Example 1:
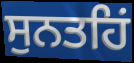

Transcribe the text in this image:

ਸੁਨਤਹਿਂ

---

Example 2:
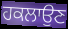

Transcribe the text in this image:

ਹਕਲਾਉਣ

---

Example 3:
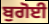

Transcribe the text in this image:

ਬੁਗੋਈ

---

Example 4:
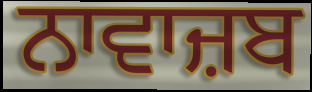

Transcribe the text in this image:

ਨਾਵਾਜ਼ਬ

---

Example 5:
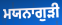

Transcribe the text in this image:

ਮਯਨਾਗੁੜੀ